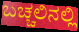
ಬಚ್ಚಲಿನಲ್ಲಿ